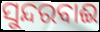
ସୁନ୍ଦରବାଈ